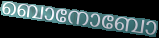
ബൊനോബോ